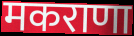
मकराणा